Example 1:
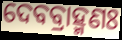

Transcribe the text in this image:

ଦେବବ୍ରାହ୍ମଣଃ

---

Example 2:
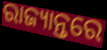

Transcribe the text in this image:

ରାଜ୍ୟାନ୍ତରେ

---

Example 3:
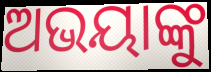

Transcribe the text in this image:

ଅଭୟାଙ୍କୁ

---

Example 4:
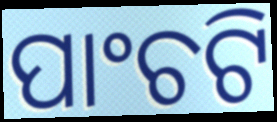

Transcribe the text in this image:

ପାଂଚଟି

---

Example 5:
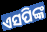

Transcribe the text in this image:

ଏସପିଙ୍କ